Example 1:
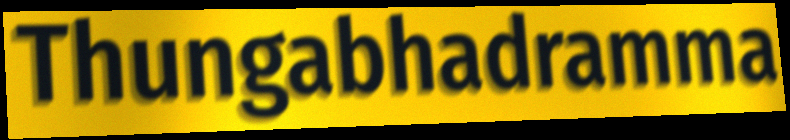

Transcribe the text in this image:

Thungabhadramma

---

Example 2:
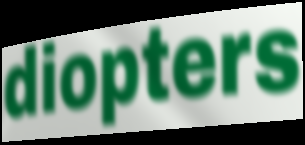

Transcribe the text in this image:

diopters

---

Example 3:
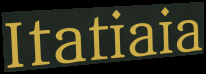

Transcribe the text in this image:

Itatiaia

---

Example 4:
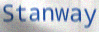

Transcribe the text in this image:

Stanway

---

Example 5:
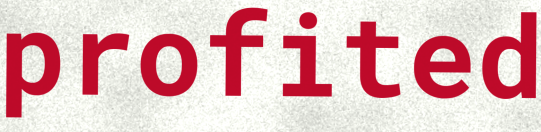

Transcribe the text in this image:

profited